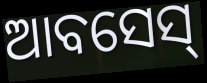
ଆବସେସ୍